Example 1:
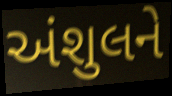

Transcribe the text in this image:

અંશુલને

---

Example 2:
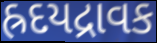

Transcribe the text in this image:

હ્રદયદ્રાવક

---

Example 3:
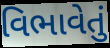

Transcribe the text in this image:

વિભાવેતું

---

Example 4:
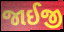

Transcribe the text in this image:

જાઈજી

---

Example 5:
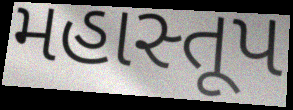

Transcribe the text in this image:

મહાસ્તૂપ